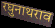
रघुनाथराव